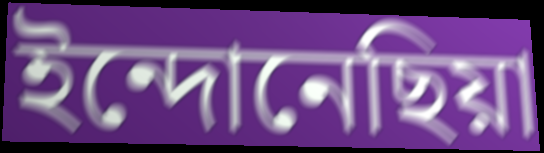
ইন্দোনেছিয়া